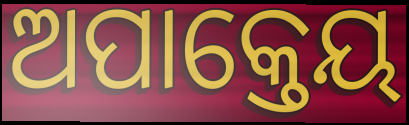
ଅପାକ୍ତେୟ